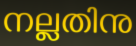
നല്ലതിനു